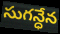
సుగన్ధేన